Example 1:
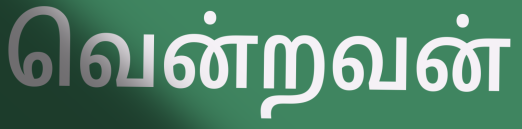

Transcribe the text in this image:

வென்றவன்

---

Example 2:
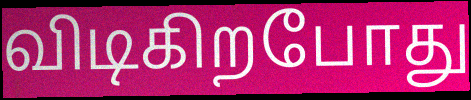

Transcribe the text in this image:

விடிகிறபோது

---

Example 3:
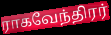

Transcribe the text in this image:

ராகவேந்திரர்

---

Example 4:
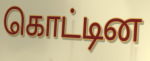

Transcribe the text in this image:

கொட்டின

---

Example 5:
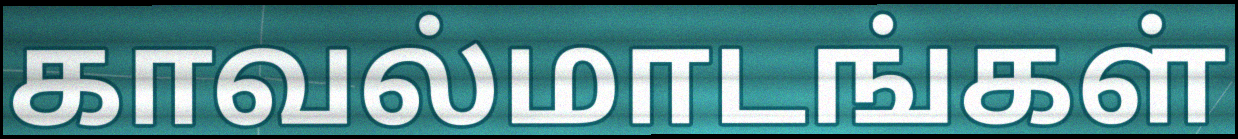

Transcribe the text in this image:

காவல்மாடங்கள்